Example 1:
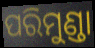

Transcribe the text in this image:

ପରିମୁଣ୍ଡା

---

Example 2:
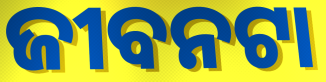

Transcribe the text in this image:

ଜୀବନଟା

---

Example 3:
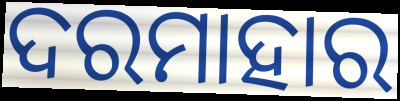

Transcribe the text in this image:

ଦରମାହାର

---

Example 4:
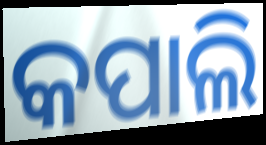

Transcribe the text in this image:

କପାଲି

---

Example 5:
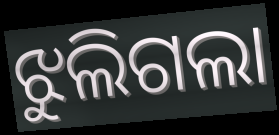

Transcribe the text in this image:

ଝୁଲିଗଲା